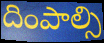
దింపాల్సి